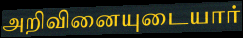
அறிவினையுடையார்